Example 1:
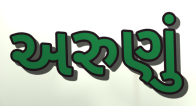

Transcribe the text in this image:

અરુણું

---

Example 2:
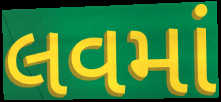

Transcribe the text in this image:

લવમાં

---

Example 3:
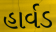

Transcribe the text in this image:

હાર્વડ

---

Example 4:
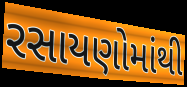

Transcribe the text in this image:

રસાયણોમાંથી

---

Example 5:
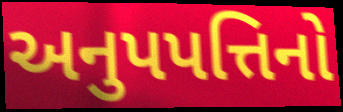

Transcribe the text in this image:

અનુપપત્તિનો